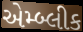
એમ્બ્લીક